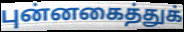
புன்னகைத்துக்